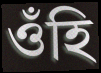
ওঁহি